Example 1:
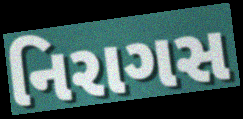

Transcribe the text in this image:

નિરાગસ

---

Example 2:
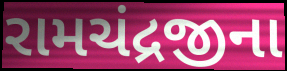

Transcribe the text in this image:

રામચંદ્રજીના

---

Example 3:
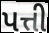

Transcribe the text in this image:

પત્તી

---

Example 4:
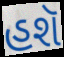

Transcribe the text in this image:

હશૅ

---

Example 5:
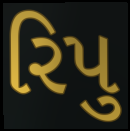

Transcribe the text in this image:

રિપુ